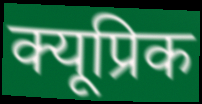
क्यूप्रिक